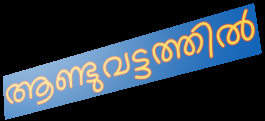
ആണ്ടുവട്ടത്തിൽ